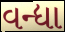
વન્દ્યા